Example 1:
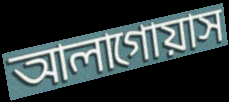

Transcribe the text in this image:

আলাগোয়াস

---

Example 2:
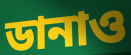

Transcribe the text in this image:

ডানাও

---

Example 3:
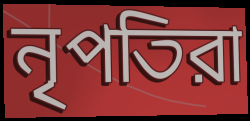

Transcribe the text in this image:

নৃপতিরা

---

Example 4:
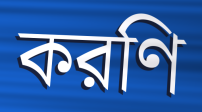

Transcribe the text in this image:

করণি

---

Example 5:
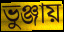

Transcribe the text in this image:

ভুঞ্জায়